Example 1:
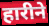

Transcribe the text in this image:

हारीने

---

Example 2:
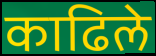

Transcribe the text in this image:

काढिले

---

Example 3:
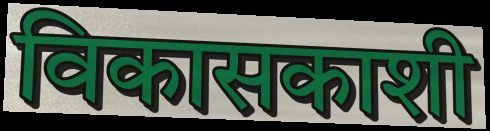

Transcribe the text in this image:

विकासकाशी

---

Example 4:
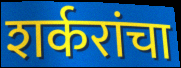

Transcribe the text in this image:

शर्करांचा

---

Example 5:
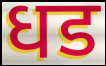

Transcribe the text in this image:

धड